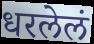
धरलेलं